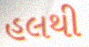
હલથી